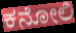
ಕನೋಲಿ